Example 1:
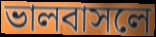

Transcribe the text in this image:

ভালবাসলে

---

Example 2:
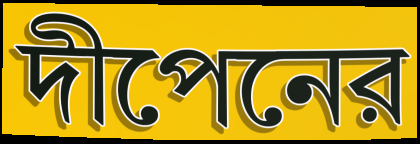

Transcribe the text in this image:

দীপেনের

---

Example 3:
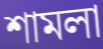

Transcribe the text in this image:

শামলা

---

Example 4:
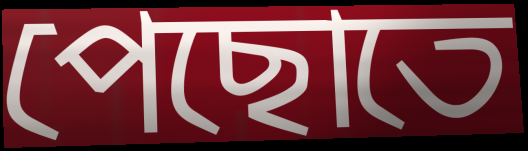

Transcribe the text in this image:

পেছোতে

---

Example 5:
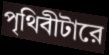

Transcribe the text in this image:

পৃথিবীটারে